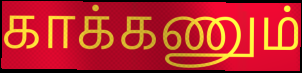
காக்கணும்